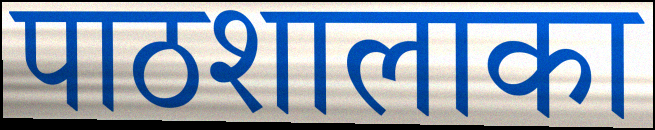
पाठशालाका